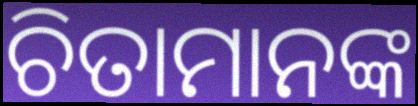
ଚିତାମାନଙ୍କ